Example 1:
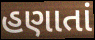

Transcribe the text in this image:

હણાતાં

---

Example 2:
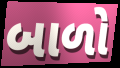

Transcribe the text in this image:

બાળો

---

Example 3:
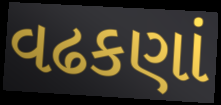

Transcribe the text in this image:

વઢકણાં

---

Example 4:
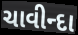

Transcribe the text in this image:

ચાવીન્દા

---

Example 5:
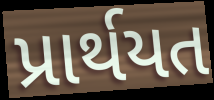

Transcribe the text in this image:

પ્રાર્થયત